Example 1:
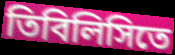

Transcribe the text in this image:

তিবিলিসিতে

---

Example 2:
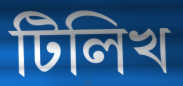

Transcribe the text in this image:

টিলিখ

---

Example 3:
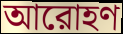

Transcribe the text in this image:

আরোহণ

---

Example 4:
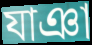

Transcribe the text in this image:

যাঞা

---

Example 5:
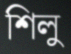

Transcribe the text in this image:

শিলু